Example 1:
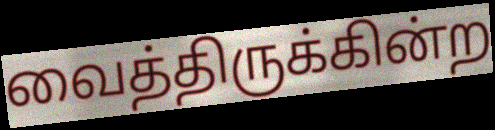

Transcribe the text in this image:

வைத்திருக்கின்ற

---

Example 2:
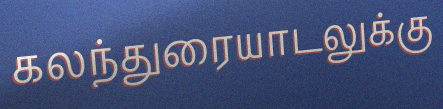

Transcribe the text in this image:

கலந்துரையாடலுக்கு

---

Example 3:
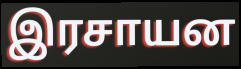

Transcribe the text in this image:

இரசாயன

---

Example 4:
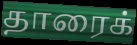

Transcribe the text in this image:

தாரைக்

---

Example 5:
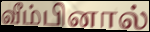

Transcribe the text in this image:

வீம்பினால்